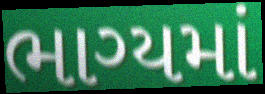
ભાગ્યમાં